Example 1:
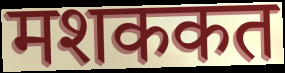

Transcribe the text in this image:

मशककत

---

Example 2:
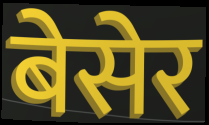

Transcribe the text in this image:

बेसेर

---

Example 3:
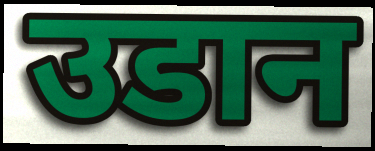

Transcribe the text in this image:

उडान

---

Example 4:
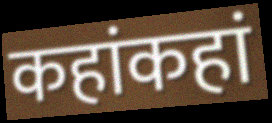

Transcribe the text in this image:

कहांकहां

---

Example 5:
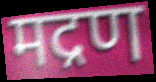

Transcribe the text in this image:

मद्रण